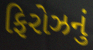
ફિરોઝનું